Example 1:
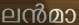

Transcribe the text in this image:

ലൻമാ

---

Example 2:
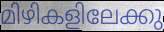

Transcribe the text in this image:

മിഴികളിലേക്കു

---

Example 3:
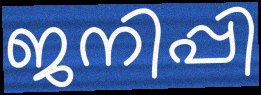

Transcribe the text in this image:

ജനിപ്പി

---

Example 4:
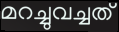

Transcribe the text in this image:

മറച്ചുവച്ചത്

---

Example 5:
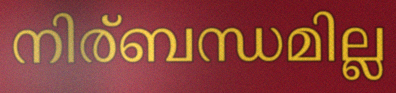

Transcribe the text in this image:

നിര്ബന്ധമില്ല